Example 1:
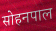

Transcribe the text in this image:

सोहनपाल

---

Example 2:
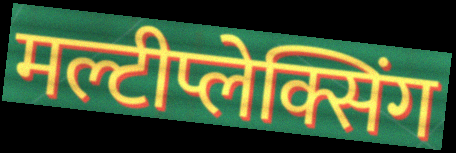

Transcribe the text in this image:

मल्टीप्लेक्सिंग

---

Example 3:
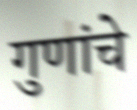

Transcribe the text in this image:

गुणांचे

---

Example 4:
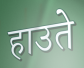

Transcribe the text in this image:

हाउते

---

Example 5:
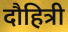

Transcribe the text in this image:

दौहित्री